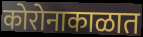
कोरोनाकाळात